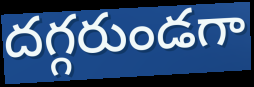
దగ్గరుండగా